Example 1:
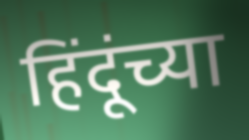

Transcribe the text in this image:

हिंदूंच्या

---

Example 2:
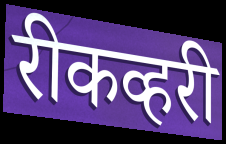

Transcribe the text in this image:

रीकव्हरी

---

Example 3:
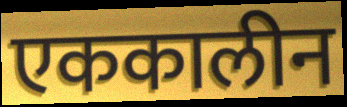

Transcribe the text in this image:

एककालीन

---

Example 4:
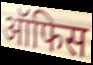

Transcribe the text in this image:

ऑफिस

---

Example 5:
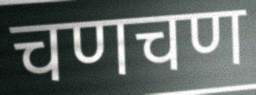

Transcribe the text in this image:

चणचण